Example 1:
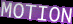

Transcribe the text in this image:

MOTION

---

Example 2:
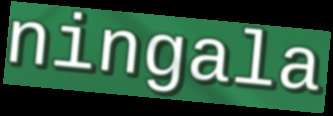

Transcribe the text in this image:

ningala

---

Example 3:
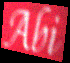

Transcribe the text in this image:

Abi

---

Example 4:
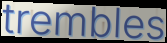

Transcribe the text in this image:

trembles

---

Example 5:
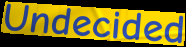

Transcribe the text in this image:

Undecided